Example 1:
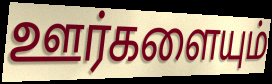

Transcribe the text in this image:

ஊர்களையும்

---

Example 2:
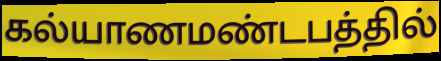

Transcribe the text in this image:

கல்யாணமண்டபத்தில்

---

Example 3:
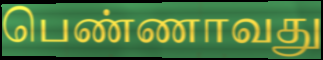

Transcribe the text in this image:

பெண்ணாவது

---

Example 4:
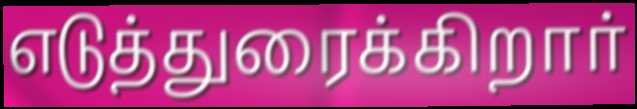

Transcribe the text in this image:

எடுத்துரைக்கிறார்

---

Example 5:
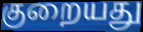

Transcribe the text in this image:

குறையது